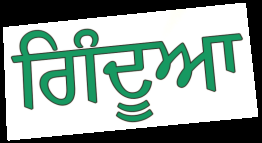
ਗਿੰਦੂਆ